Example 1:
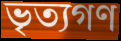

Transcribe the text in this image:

ভৃত্যগণ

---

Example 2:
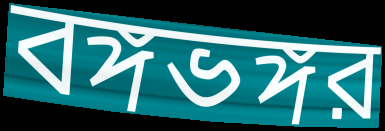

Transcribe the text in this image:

বঙ্গভঙ্গর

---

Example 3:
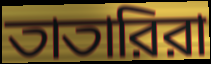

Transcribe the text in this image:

তাতারিরা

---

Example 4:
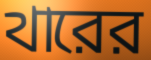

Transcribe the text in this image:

থারের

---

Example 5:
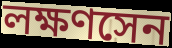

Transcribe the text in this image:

লক্ষণসেন